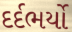
દર્દભર્યો